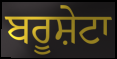
ਬਰੂਸ਼ੇਟਾ